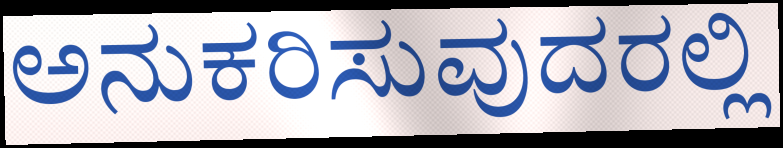
ಅನುಕರಿಸುವುದರಲ್ಲಿ